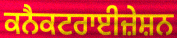
ਕਨੈਕਟਰਾਈਜ਼ੇਸ਼ਨ